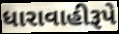
ધારાવાહીરૂપે